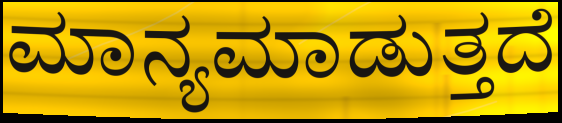
ಮಾನ್ಯಮಾಡುತ್ತದೆ